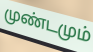
முண்டமும்